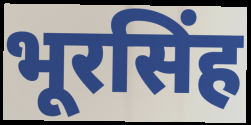
भूरसिंह